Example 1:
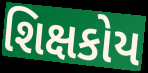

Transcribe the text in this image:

શિક્ષકોય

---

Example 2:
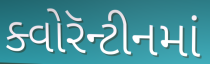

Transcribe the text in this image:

ક્વોરૅન્ટીનમાં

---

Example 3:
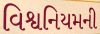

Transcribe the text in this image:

વિશ્વનિયમની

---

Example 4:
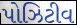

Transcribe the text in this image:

પોઝિટીવ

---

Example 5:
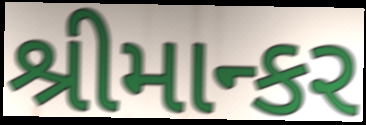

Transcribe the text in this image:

શ્રીમાન્કર